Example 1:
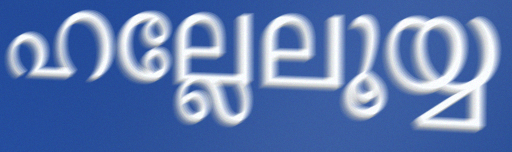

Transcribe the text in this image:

ഹല്ലേലൂയ്യ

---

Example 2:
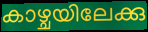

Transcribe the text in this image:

കാഴ്ചയിലേക്കു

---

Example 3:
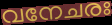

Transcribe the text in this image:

വനേചരഃ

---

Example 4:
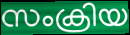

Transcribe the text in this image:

സംക്രിയ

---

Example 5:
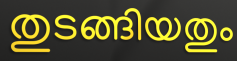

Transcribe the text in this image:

തുടങ്ങിയതും